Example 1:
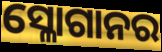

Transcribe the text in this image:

ସ୍ଳୋଗାନର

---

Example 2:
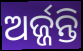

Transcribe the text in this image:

ଅର୍ଜ୍ଜନ୍ତି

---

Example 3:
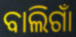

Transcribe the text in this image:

ବାଲିଗାଁ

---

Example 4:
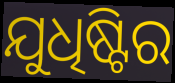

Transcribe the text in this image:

ଯୁଧିଷ୍ଟିର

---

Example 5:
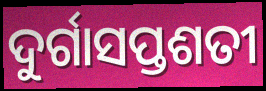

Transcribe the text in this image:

ଦୁର୍ଗାସପ୍ତଶତୀ